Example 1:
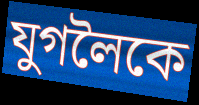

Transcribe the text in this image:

যুগলৈকে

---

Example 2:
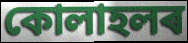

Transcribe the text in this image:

কোলাহলৰ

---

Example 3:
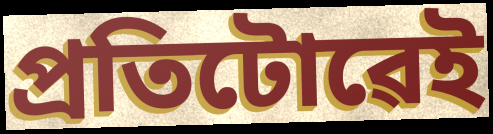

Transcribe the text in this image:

প্ৰতিটোৱেই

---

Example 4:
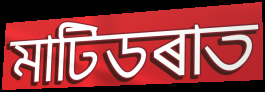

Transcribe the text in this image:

মাটিডৰাত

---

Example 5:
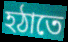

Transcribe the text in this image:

হঠাতে